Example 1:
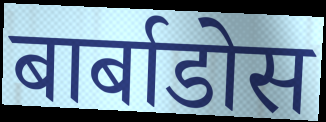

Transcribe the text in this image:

बार्बाडोस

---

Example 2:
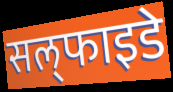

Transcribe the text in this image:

सल्फाइडे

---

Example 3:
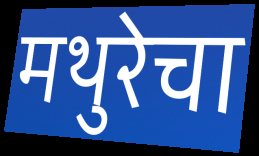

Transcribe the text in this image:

मथुरेचा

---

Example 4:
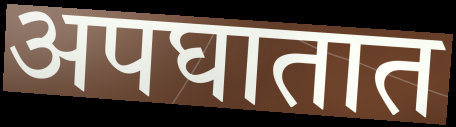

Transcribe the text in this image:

अपघातात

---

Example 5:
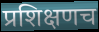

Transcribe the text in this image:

प्रशिक्षणच